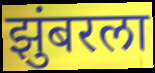
झुंबरला